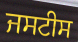
ਜਸਟੀਸ